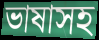
ভাষাসহ